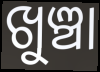
ଖୁଞ୍ଚା